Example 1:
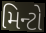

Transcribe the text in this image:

મિન્ટો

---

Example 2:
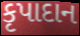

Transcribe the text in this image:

કૃપાદાન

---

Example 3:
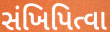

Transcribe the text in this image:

સંખિપિત્વા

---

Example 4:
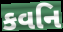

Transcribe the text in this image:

કવનિ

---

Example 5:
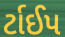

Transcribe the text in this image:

ર્ટાઈપ